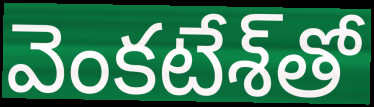
వెంకటేశ్‌తో